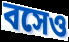
বসেও